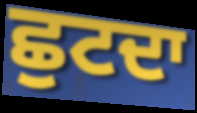
ਛੁਟਦਾ